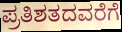
ಪ್ರತಿಶತದವರೆಗೆ